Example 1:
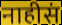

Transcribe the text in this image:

नाहीसं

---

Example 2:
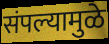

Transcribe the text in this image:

संपल्यामुळे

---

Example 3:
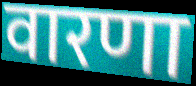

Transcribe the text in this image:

वारणा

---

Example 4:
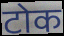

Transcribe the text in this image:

टोक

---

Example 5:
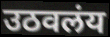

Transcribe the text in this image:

उठवलंय